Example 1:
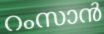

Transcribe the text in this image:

റംസാൻ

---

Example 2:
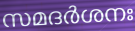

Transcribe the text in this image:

സമദർശനഃ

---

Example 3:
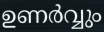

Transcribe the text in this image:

ഉണർവ്വും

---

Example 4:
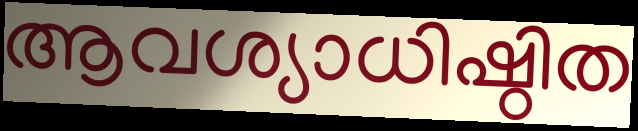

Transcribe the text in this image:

ആവശ്യാധിഷ്ഠിത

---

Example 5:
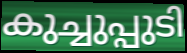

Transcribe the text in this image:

കുച്ചുപ്പുടി